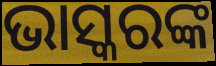
ଭାସ୍କରଙ୍କ